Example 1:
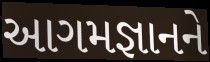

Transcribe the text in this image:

આગમજ્ઞાનને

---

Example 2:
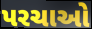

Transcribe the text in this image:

પરચાઓ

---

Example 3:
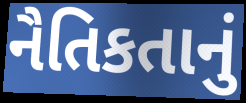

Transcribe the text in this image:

નૈતિકતાનું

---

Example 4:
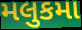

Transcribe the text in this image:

મલુકમા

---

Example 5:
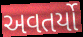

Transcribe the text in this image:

અવતર્યો